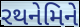
રથનેમિને